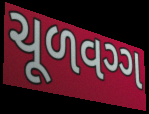
ચૂળવગ્ગ